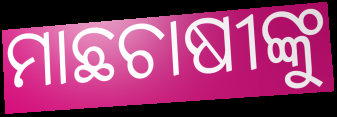
ମାଛଚାଷୀଙ୍କୁ